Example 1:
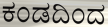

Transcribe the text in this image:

ಕಂಡದಿಂದ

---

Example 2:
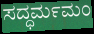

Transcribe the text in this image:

ಸದ್ಧರ್ಮಮಂ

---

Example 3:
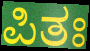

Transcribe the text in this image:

ಪಿತಃ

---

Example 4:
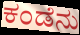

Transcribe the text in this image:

ಕಂಡೆನು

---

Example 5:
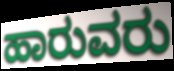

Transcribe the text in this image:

ಹಾರುವರು